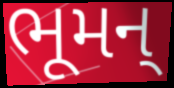
ભૂમન્